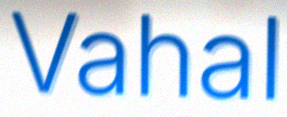
Vahal